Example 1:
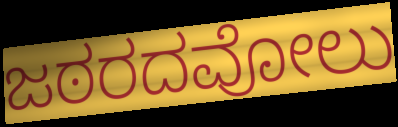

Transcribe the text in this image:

ಜಠರದವೋಲು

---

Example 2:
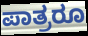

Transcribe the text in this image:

ಪಾತ್ರರೂ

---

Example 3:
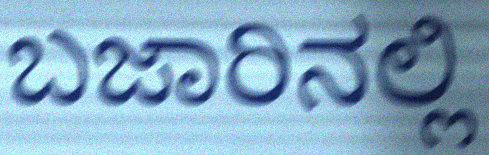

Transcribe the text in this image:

ಬಜಾರಿನಲ್ಲಿ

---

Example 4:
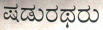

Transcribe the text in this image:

ಷಡುರಥರು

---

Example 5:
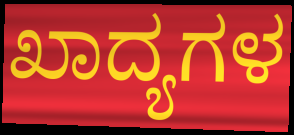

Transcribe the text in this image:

ಖಾದ್ಯಗಳ